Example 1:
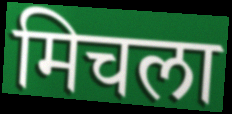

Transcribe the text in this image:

मिचला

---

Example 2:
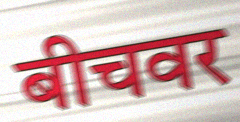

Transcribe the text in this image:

बीचवर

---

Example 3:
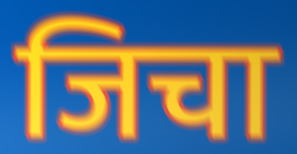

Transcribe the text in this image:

जिचा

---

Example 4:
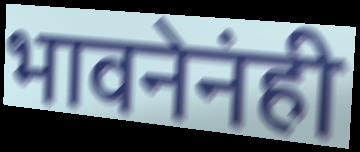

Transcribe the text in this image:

भावनेनंही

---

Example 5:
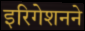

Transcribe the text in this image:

इरिगेशनने